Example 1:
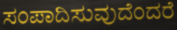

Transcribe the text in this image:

ಸಂಪಾದಿಸುವುದೆಂದರೆ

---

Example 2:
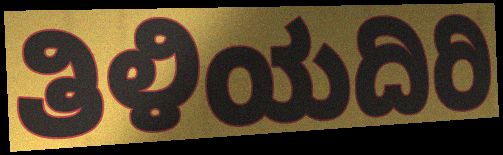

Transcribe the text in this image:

ತಿಳಿಯದಿರಿ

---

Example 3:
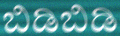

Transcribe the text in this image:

ಬಿಡಿಬಿಡಿ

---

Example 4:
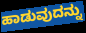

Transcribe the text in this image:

ಹಾಡುವುದನ್ನು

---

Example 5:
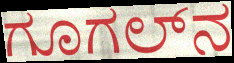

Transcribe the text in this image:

ಗೂಗಲ್‌ನ